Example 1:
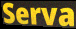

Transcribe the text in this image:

Serva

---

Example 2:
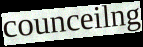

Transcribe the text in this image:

counceilng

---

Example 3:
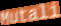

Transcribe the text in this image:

Mutali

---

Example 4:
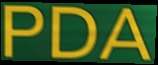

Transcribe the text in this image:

PDA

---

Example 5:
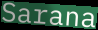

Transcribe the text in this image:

Sarana